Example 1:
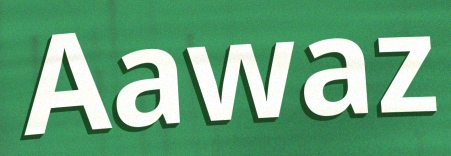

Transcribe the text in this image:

Aawaz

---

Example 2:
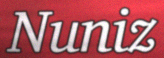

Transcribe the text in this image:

Nuniz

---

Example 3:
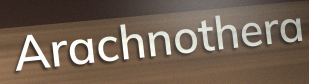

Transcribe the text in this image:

Arachnothera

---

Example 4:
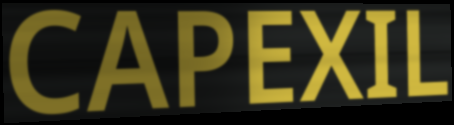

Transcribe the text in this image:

CAPEXIL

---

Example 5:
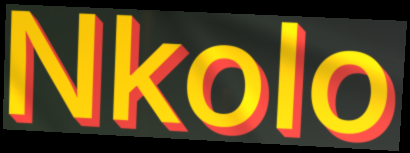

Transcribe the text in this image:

Nkolo